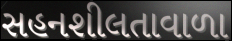
સહનશીલતાવાળા